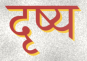
दृष्य